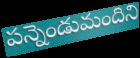
పన్నెండుమందిని